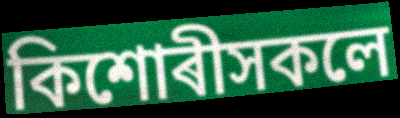
কিশোৰীসকলে